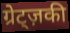
ग्रेट्ज़की